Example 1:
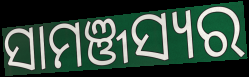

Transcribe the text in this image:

ସାମଞ୍ଜସ୍ୟର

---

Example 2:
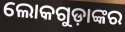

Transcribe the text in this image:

ଲୋକଗୁଡ଼ାଙ୍କର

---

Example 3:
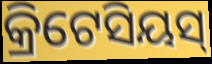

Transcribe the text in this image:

କ୍ରିଟେସିୟସ୍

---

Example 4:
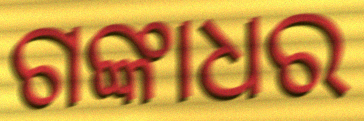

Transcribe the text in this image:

ଗଙ୍କାଧର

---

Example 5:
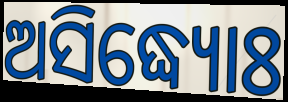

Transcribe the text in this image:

ଅସିଦ୍ଧ୍ୟୋଃ